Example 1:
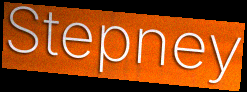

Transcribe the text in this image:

Stepney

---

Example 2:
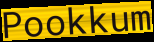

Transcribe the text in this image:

Pookkum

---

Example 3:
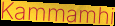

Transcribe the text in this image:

Kammamhi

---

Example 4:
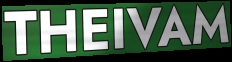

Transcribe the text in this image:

THEIVAM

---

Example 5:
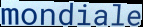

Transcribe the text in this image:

mondiale